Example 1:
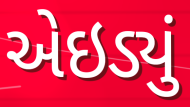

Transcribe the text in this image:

એઇડ્યું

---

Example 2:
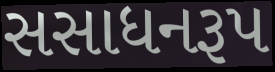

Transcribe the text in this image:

સસાધનરૂપ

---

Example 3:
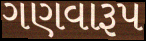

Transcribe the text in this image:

ગણવારૂપ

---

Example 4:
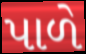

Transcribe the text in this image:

પાળે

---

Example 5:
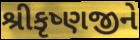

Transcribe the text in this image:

શ્રીકૃષ્ણજીને